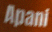
Apani